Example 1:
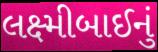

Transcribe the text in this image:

લક્ષ્મીબાઈનું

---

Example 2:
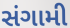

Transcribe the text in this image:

સંગામી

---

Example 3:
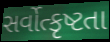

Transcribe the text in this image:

સર્વોત્કૃષ્ટતા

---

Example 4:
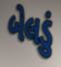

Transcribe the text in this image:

બેલડું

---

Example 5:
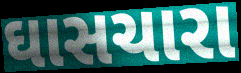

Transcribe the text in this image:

ઘાસચારા